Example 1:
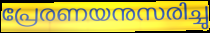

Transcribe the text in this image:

പ്രേരണയനുസരിച്ചു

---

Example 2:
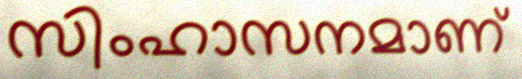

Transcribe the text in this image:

സിംഹാസനമാണ്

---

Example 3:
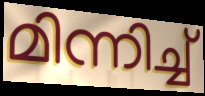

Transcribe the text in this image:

മിന്നിച്ച്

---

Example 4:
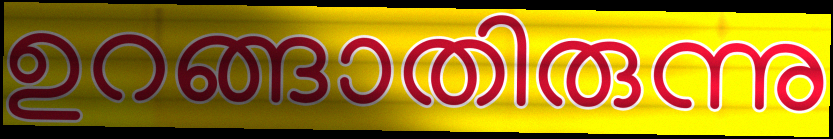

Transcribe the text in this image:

ഉറങ്ങാതിരുന്നു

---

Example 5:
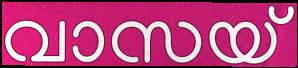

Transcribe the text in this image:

വാസയ്